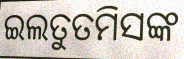
ଇଲତୁତମିସଙ୍କ